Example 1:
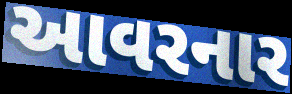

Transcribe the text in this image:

આવરનાર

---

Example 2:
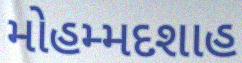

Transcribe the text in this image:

મોહમ્મદશાહ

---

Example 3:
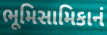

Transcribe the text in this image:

ભૂમિસામિકાનં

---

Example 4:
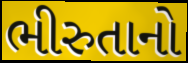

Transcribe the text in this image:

ભીરુતાનો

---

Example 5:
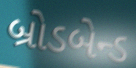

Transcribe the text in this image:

બ્રોડબેન્ડ